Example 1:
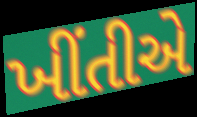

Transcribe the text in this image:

ખીંતીએ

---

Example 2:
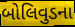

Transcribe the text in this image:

બોલિવુડના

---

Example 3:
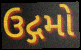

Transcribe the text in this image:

ઉદ્ગમો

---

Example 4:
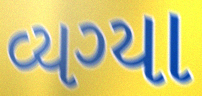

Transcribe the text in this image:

વ્યગ્યા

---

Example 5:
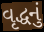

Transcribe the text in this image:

વૃદ્ધનું